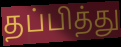
தப்பித்து